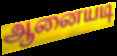
ஆனையடி